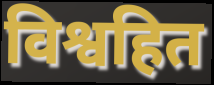
विश्वहित